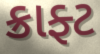
ક્રાફ્ટ